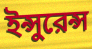
ইন্সুরেন্স